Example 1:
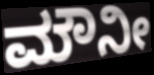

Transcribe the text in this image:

ಮೌನೀ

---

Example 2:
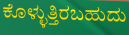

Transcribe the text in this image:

ಕೊಳ್ಳುತ್ತಿರಬಹುದು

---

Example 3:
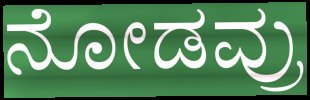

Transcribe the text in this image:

ನೋಡವ್ರು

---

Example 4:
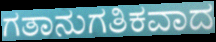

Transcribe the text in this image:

ಗತಾನುಗತಿಕವಾದ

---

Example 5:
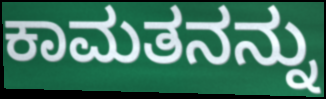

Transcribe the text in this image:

ಕಾಮತನನ್ನು